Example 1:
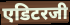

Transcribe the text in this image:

एडिटरजी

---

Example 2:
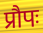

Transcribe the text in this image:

प्रौपः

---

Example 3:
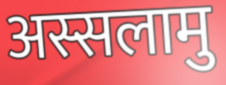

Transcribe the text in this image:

अस्सलामु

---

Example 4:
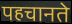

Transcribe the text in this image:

पहचानते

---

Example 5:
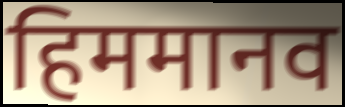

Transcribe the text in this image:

हिममानव